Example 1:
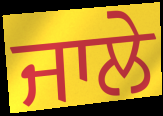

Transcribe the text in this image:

ਜਾਲੇ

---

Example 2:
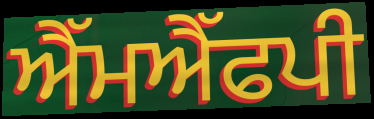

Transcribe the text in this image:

ਐੱਮਐੱਫਪੀ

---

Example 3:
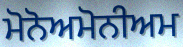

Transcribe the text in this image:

ਮੋਨੋਅਮੋਨੀਅਮ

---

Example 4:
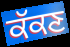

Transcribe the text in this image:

ਕੱਕਣ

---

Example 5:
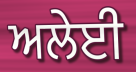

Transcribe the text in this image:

ਅਲੇਈ